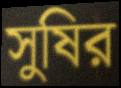
সুষির